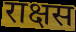
राक्षस